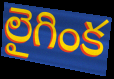
లైగింక